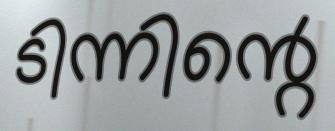
ടിന്നിന്റെ